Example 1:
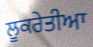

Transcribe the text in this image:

ਲੂਕਰੇਤੀਆ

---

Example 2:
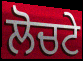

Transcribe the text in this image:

ਲੋਚਟੇ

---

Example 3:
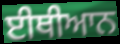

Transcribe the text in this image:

ਈਥੀਆਨ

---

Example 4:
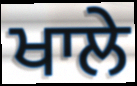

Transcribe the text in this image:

ਖਾਲੇ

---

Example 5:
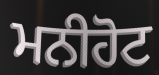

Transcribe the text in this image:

ਮਨੀਹੋਟ